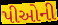
પીઓની